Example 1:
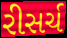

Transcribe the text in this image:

રીસર્ચ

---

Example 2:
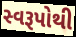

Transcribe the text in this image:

સ્વરૂપોથી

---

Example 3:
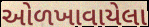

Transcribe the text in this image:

ઓળખાવાયેલા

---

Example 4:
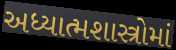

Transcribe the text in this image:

અધ્યાત્મશાસ્ત્રોમાં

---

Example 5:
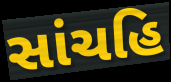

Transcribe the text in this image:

સાંચહિ